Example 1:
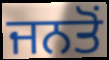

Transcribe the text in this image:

ਜਨਤੋਂ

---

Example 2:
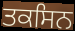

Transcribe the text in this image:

ਤਕਸਿਨ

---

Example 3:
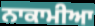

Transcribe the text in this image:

ਨਾਕਾਮੀਆ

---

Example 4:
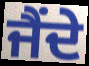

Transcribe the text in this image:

ਜੈਂਦੇ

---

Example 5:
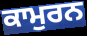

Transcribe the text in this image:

ਕਾਮੁਰਨ